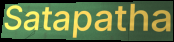
Satapatha